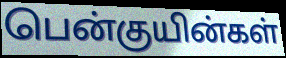
பென்குயின்கள்